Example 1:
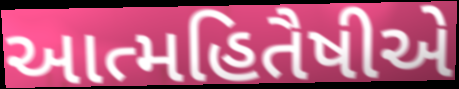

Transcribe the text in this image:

આત્મહિતૈષીએ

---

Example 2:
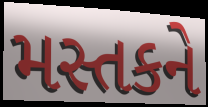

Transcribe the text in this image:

મસ્તકને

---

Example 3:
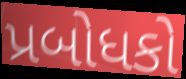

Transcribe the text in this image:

પ્રબોધકો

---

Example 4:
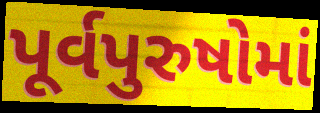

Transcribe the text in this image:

પૂર્વપુરુષોમાં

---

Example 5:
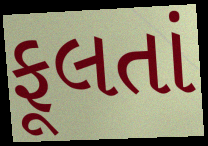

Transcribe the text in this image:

ફૂલતાં